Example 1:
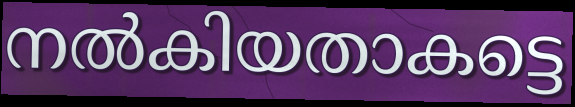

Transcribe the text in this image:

നൽകിയതാകട്ടെ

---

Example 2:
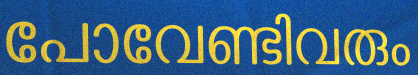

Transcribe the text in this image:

പോവേണ്ടിവരും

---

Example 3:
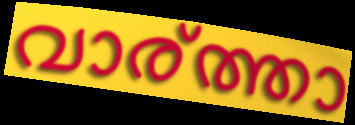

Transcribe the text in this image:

വാര്ത്താ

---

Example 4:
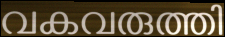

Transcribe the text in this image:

വകവരുത്തി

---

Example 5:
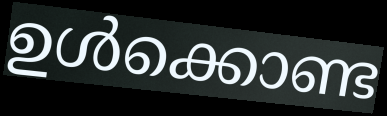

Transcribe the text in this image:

ഉൾക്കൊണ്ട